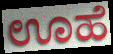
ಊಹೆ